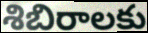
శిబిరాలకు